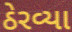
ઠેરવ્યા